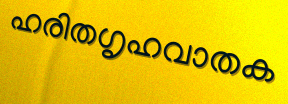
ഹരിതഗൃഹവാതക